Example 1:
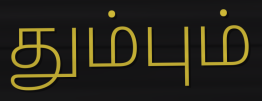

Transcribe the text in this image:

தும்பும்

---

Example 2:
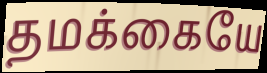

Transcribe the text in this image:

தமக்கையே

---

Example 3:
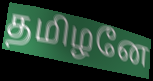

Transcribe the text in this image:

தமிழனே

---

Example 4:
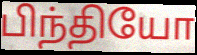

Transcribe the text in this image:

பிந்தியோ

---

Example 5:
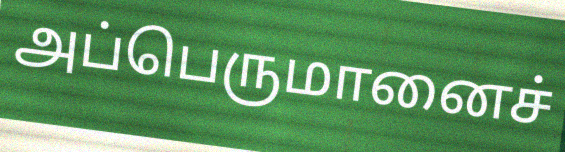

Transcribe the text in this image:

அப்பெருமானைச்